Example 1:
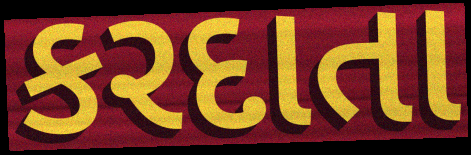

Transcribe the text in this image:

કરદાતા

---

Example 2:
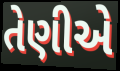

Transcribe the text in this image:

તેણીએ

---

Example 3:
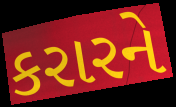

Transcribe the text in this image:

કરારને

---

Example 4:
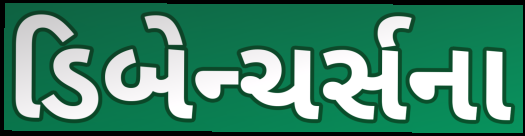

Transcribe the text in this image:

ડિબેન્ચર્સના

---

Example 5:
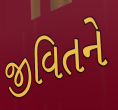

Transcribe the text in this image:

જીવિતને